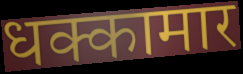
धक्कामार